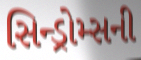
સિન્ડ્રોમ્સની